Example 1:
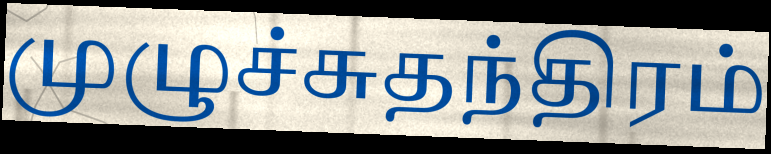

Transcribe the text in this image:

முழுச்சுதந்திரம்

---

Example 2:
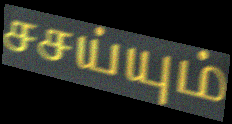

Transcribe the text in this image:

சசய்யும்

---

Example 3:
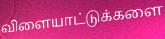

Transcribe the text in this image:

விளையாட்டுக்களை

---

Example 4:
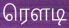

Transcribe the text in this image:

ரௌடி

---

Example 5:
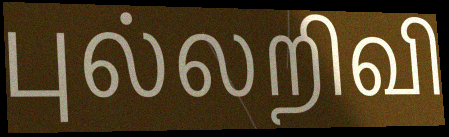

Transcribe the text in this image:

புல்லறிவி